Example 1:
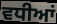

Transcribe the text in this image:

ਵਧੀਆਂ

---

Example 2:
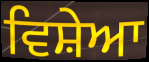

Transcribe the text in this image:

ਵਿਸ਼ੇਆ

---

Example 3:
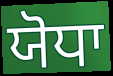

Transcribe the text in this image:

ਯੋਧਾ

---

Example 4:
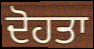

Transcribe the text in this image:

ਦੋਹਤਾ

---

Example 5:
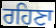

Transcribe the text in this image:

ਰਹਿਣਾ